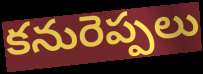
కనురెప్పలు